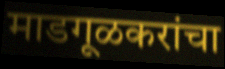
माडगूळकरांचा